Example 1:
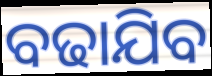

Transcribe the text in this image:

ବଢାଯିବ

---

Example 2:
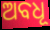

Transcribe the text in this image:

ଅବଧୂ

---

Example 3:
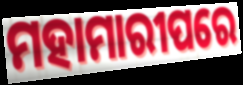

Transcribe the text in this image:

ମହାମାରୀପରେ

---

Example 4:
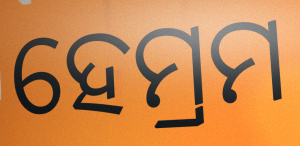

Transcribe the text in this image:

ହେମ୍ରମ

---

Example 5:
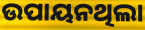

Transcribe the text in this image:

ଉପାୟନଥିଲା